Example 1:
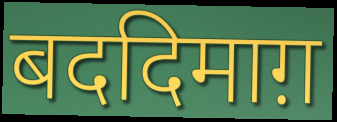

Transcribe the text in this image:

बददिमाग़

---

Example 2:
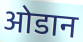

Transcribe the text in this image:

ओडान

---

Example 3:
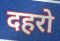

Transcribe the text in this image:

दहरो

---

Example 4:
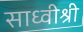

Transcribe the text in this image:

साध्वीश्री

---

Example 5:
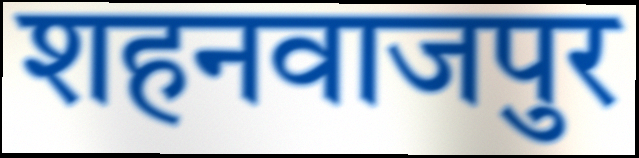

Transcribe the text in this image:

शहनवाजपुर